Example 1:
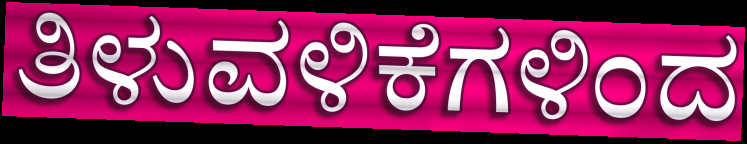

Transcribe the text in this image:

ತಿಳುವಳಿಕೆಗಳಿಂದ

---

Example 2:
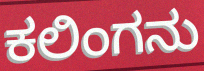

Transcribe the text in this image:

ಕಲಿಂಗನು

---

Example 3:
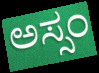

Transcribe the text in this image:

ಅಸ್ಸಂ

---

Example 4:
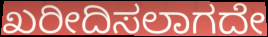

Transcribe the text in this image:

ಖರೀದಿಸಲಾಗದೇ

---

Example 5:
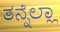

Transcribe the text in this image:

ತನ್ನೆಲ್ಲಾ